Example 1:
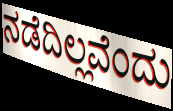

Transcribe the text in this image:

ನಡೆದಿಲ್ಲವೆಂದು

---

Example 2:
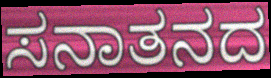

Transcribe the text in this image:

ಸನಾತನದ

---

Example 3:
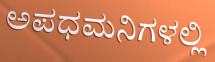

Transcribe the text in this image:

ಅಪಧಮನಿಗಳಲ್ಲಿ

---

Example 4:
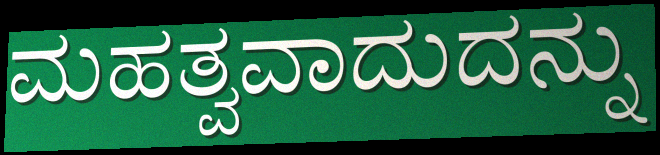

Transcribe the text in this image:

ಮಹತ್ವವಾದುದನ್ನು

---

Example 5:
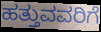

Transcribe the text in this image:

ಹತ್ತುವವರಿಗೆ